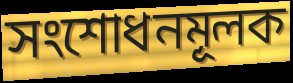
সংশোধনমূলক